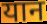
यान